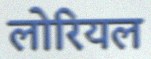
लोरियल